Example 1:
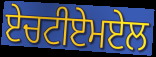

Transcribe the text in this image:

ਏਚਟੀਏਮਏਲ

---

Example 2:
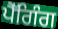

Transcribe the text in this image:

ਪੈੱਗਿੰਗ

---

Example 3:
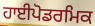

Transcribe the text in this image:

ਹਾਈਪੋਡਰਮਿਕ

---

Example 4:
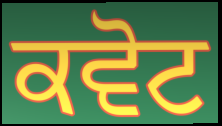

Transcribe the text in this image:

ਕਵੋਟ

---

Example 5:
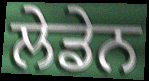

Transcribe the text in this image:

ਲੇਡੇਨ